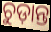
ଚୁଡ଼ାନ୍ତ